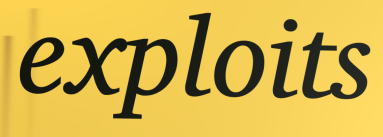
exploits